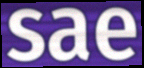
sae